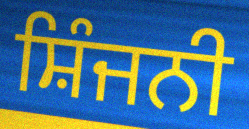
ਸ਼ਿੰਜਨੀ